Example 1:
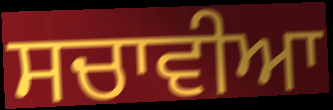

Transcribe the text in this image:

ਸਚਾਵੀਆ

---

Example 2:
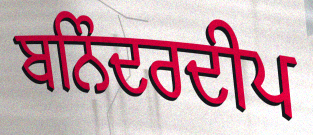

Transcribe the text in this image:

ਬਨਿੰਦਰਦੀਪ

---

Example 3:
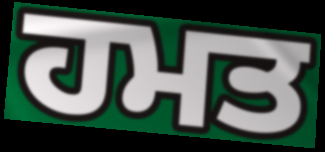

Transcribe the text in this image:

ਹਮਤ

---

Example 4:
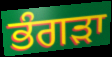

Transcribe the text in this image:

ਭੰਗੜਾ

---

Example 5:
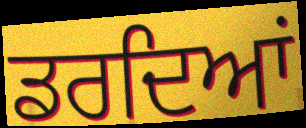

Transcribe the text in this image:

ਡਰਦਿਆਂ